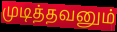
முடித்தவனும்